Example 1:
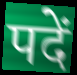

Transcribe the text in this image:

पदें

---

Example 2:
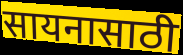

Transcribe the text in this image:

सायनासाठी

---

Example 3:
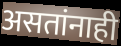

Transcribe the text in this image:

असतांनाही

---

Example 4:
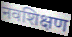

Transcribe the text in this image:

नवशिक्षण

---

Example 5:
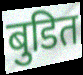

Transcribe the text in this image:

बुडित